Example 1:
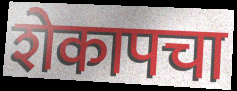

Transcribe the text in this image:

शेकापचा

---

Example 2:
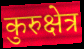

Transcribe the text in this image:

कुरुक्षेत्र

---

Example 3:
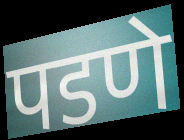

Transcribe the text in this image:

पडणे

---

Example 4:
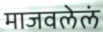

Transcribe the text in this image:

माजवलेलं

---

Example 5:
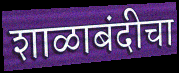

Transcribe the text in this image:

शाळाबंदीचा